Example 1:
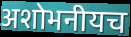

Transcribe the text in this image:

अशोभनीयच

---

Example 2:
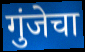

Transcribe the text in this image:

गुंजेचा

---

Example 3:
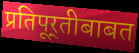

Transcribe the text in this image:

प्रतिपूर्तीबाबत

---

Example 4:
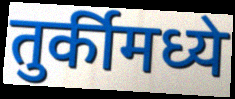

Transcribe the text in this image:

तुर्कीमध्ये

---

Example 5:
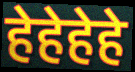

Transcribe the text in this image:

हेहेहेहे